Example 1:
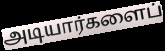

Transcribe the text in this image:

அடியார்களைப்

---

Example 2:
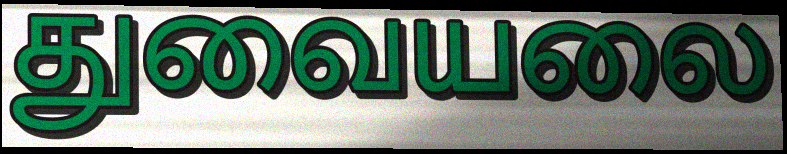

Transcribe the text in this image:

துவையலை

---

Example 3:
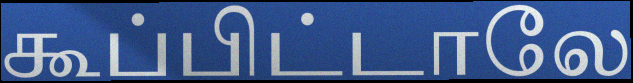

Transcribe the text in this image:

கூப்பிட்டாலே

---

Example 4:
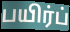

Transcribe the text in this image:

பயிர்ப்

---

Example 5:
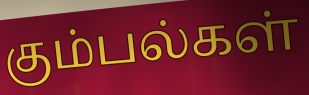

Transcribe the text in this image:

கும்பல்கள்